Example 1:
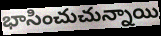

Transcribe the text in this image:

భాసించుచున్నాయి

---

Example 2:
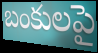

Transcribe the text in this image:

బంకులపై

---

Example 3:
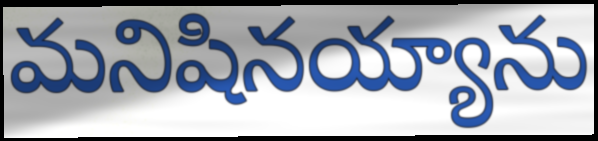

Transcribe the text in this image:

మనిషినయ్యాను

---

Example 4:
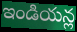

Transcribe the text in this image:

ఇండియన్ల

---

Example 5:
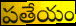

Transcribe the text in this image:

పతేయం